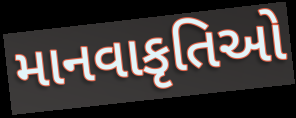
માનવાકૃતિઓ